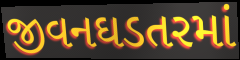
જીવનઘડતરમાં